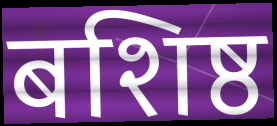
बशिष्ठ